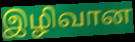
இழிவான